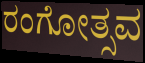
ರಂಗೋತ್ಸವ